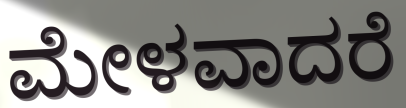
ಮೇಳವಾದರೆ